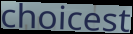
choicest